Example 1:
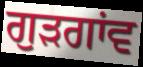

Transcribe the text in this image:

ਗੁਡ਼ਗਾਂਵ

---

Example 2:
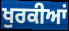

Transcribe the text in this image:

ਖੁਰਕੀਆਂ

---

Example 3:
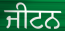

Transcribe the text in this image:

ਜੀਟਨ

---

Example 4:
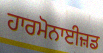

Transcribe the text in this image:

ਹਾਰਮੋਨਾਈਜ਼ਡ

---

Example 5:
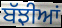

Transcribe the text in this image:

ਬੱਝੀਆਂ